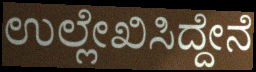
ಉಲ್ಲೇಖಿಸಿದ್ದೇನೆ